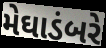
મેઘાડંબરે